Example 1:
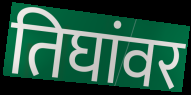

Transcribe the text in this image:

तिघांवर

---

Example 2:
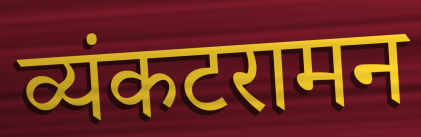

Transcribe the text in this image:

व्यंकटरामन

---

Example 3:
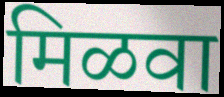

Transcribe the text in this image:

मिळवा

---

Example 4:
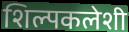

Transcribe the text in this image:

शिल्पकलेशी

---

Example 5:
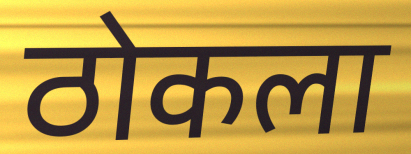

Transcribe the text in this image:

ठोकला